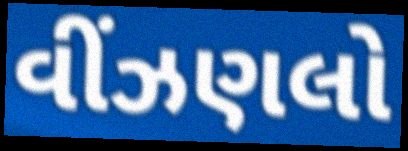
વીંઝણલો